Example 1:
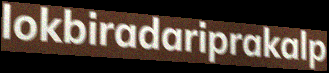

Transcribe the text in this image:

lokbiradariprakalp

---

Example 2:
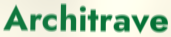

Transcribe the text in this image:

Architrave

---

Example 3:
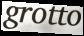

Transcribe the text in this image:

grotto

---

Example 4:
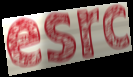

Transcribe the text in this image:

esrc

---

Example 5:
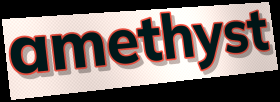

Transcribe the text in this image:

amethyst